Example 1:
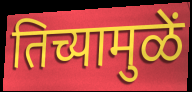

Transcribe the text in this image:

तिच्यामुळें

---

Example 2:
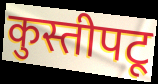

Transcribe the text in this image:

कुस्तीपटू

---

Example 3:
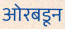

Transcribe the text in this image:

ओरबडून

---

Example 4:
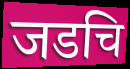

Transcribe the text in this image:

जडचि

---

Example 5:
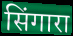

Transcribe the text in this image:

सिंगारा